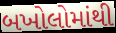
બખોલોમાંથી